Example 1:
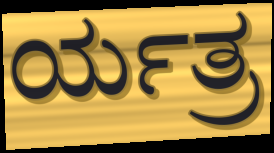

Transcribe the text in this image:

ರ್ಯತ್ರ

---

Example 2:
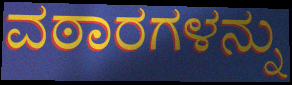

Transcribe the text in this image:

ವಠಾರಗಳನ್ನು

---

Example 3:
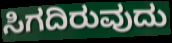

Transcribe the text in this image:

ಸಿಗದಿರುವುದು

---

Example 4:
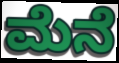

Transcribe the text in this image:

ಮೆನೆ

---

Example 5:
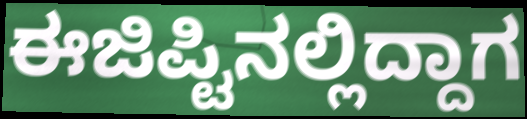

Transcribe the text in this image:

ಈಜಿಪ್ಟಿನಲ್ಲಿದ್ದಾಗ